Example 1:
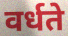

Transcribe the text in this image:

वर्धते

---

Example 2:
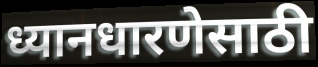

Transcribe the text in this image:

ध्यानधारणेसाठी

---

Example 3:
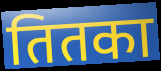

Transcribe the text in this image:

तितका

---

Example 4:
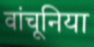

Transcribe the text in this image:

वांचूनिया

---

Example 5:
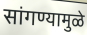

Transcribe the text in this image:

सांगण्यामुळे